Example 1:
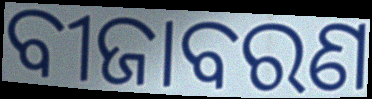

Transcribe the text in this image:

ବୀଜାବରଣ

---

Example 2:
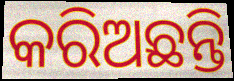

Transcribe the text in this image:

କରିଅଛନ୍ତି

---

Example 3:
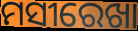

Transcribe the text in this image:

ମସୀରେଖା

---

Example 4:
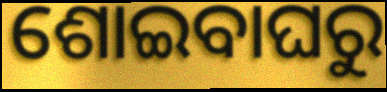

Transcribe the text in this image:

ଶୋଇବାଘରୁ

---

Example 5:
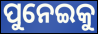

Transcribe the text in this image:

ପୁନେଇକୁ